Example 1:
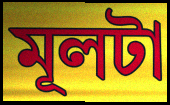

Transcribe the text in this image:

মূলটা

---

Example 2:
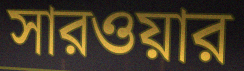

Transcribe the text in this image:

সারওয়ার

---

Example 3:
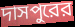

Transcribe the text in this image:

দাসপুরের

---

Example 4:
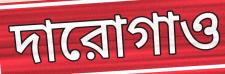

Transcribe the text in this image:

দারোগাও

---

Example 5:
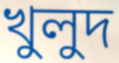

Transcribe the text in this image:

খুলুদ